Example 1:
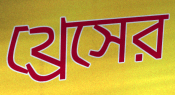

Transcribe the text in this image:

থ্রেসের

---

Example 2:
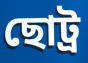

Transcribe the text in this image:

ছোট্র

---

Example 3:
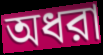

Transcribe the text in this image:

অধরা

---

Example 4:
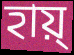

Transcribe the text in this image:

হায়্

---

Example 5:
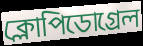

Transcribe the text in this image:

ক্লোপিডোগ্রেল